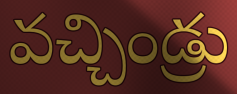
వచ్చిండ్రు